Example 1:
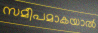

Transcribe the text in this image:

സമീപമാകയാൽ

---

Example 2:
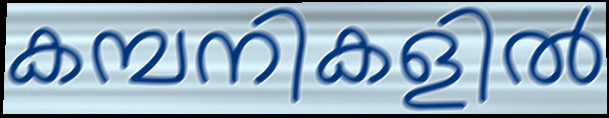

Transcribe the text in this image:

കമ്പനികളിൽ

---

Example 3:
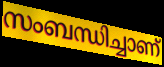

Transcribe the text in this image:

സംബന്ധിച്ചാണ്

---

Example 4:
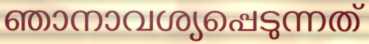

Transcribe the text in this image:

ഞാനാവശ്യപ്പെടുന്നത്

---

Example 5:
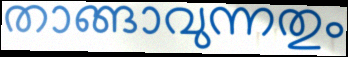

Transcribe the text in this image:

താങ്ങാവുന്നതും